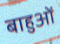
बाहुओं